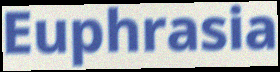
Euphrasia